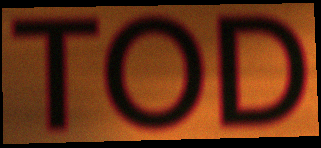
TOD